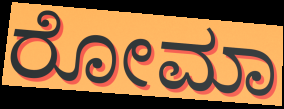
ರೋಮಾ